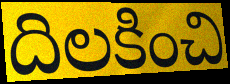
దిలకించి